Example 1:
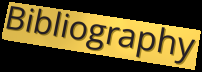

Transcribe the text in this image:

Bibliography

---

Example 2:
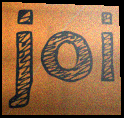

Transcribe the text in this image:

joi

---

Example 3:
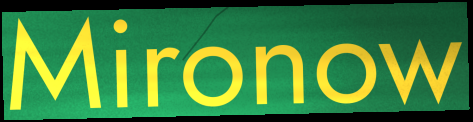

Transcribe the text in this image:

Mironow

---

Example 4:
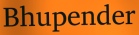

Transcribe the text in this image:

Bhupender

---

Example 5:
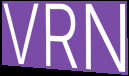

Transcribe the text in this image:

VRN